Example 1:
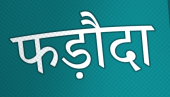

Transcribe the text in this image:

फड़ौदा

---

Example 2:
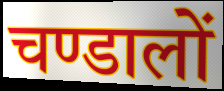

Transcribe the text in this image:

चण्डालों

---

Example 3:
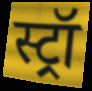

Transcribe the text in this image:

स्ट्रॉ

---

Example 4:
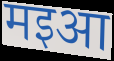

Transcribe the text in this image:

मइआ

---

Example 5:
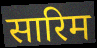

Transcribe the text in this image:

सारिम